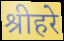
श्रीहरे